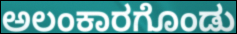
ಅಲಂಕಾರಗೊಂಡು